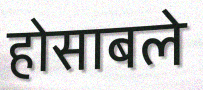
होसाबले